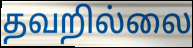
தவறில்லை